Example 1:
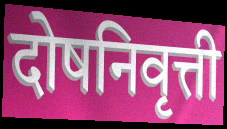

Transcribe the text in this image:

दोषनिवृत्ती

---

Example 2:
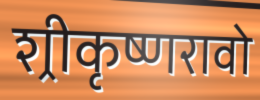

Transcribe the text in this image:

श्रीकृष्णरावो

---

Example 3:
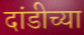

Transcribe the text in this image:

दांडीच्या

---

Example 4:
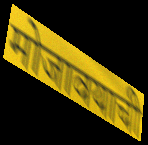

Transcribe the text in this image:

मोजावयाची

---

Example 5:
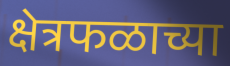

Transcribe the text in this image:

क्षेत्रफळाच्या